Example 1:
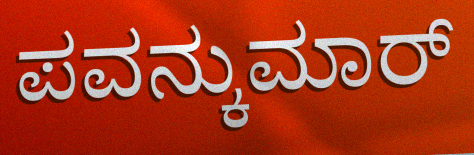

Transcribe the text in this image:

ಪವನ್ಕುಮಾರ್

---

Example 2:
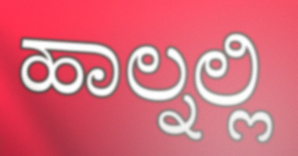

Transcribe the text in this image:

ಹಾಲ್ನಲ್ಲಿ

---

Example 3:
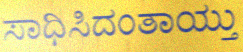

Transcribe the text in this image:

ಸಾಧಿಸಿದಂತಾಯ್ತು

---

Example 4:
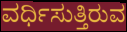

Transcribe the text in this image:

ವರ್ಧಿಸುತ್ತಿರುವ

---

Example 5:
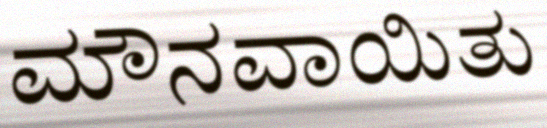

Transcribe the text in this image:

ಮೌನವಾಯಿತು